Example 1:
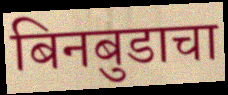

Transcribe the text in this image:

बिनबुडाचा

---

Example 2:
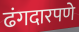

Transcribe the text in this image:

ढंगदारपणे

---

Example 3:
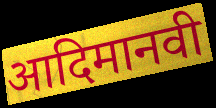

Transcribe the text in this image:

आदिमानवी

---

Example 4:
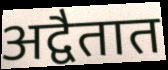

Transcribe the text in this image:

अद्वैतात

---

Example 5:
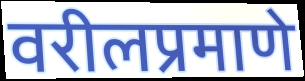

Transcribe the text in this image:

वरीलप्रमाणे